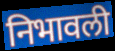
निभावली